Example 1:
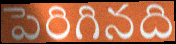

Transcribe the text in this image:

పెరిగినది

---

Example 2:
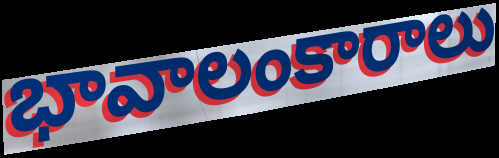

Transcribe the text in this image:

భావాలంకారాలు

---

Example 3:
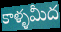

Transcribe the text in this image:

కాళ్ళమీద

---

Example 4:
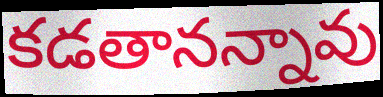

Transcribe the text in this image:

కడతానన్నావు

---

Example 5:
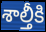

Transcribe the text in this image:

శాల్తీకి